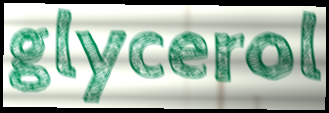
glycerol